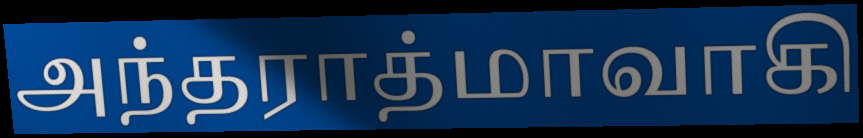
அந்தராத்மாவாகி